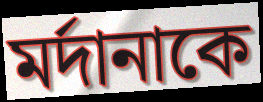
মর্দানাকে